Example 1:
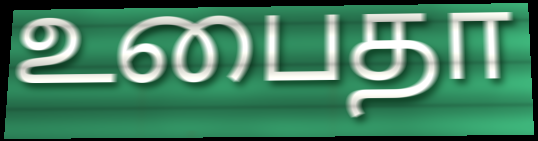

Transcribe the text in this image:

உபைதா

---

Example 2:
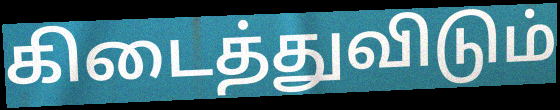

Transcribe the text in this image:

கிடைத்துவிடும்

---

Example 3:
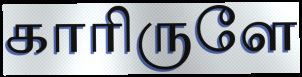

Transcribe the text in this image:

காரிருளே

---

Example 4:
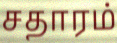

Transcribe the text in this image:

சதாரம்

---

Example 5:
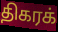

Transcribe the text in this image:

திகரக்